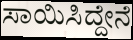
ಸಾಯಿಸಿದ್ದೇನೆ